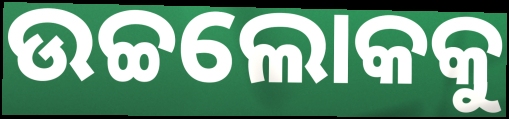
ଉଚ୍ଚଲୋକକୁ